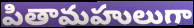
పితామహులుగా